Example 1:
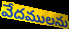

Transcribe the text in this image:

వేదములను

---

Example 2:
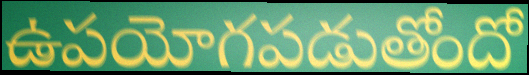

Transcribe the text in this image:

ఉపయోగపడుతోందో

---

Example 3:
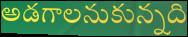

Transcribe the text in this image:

అడగాలనుకున్నది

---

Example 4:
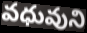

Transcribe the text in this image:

వధువుని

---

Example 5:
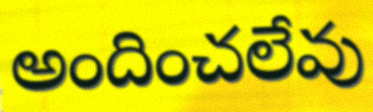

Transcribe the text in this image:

అందించలేవు